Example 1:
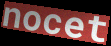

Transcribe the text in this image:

nocet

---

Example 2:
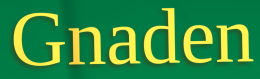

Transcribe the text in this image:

Gnaden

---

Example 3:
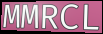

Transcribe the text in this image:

MMRCL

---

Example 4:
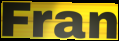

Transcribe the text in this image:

Fran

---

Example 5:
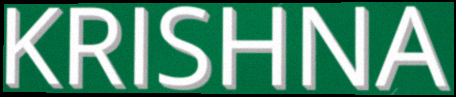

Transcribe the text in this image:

KRISHNA